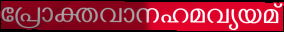
പ്രോക്തവാനഹമവ്യയമ്